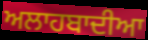
ਅਲਾਹਬਾਦੀਆ